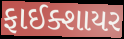
ફાઈક્શાયર